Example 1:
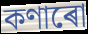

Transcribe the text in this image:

কণাৰো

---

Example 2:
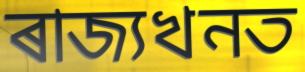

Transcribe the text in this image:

ৰাজ্যখনত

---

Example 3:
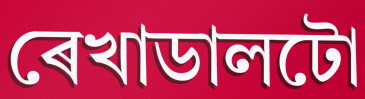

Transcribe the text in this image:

ৰেখাডালটো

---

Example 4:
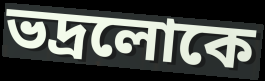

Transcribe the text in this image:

ভদ্ৰলোকে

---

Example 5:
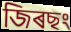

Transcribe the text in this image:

জিৰছং